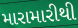
મારામારીથી